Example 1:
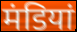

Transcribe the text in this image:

मंडियां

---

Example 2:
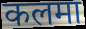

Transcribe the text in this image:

कलमा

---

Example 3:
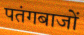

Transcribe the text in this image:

पतंगबाजों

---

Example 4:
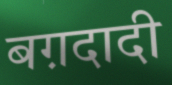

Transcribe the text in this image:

बग़दादी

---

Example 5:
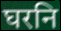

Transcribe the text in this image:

घरनि